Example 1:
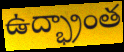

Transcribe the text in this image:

ఉద్భ్రాంత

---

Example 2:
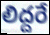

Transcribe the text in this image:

లిద్దరే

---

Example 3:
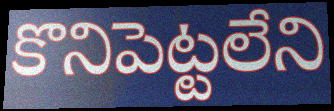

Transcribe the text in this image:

కొనిపెట్టలేని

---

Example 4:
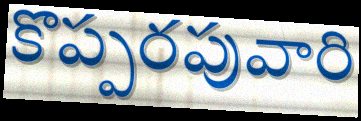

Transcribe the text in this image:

కొప్పరపువారి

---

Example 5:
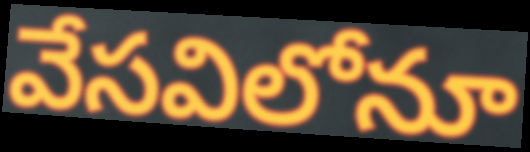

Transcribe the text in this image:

వేసవిలోనూ